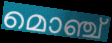
മൊഞ്ച്